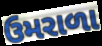
ઉમરાળા